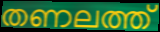
തണലത്ത്